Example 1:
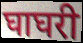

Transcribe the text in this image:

घाघरी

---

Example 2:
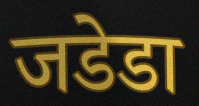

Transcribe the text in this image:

जडेडा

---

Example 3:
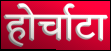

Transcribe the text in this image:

होर्चाटा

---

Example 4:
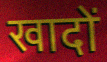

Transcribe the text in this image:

खादों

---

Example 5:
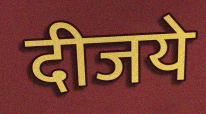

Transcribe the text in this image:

दीजये